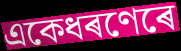
একেধৰণেৰে